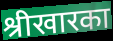
श्रीखारका